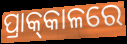
ପ୍ରାକ୍‍କାଳରେ